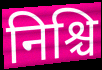
निश्चि